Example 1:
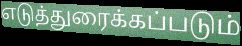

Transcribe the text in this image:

எடுத்துரைக்கப்படும்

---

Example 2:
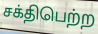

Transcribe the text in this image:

சக்திபெற்ற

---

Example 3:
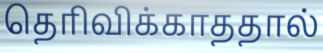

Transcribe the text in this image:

தெரிவிக்காததால்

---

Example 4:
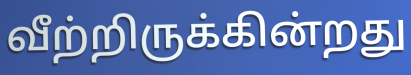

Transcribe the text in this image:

வீற்றிருக்கின்றது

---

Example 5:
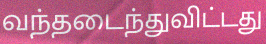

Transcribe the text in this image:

வந்தடைந்துவிட்டது